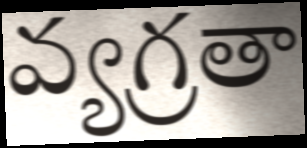
వ్యగ్రతా